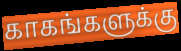
காகங்களுக்கு